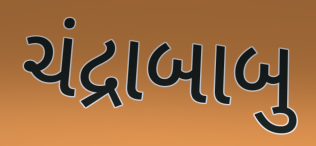
ચંદ્રાબાબુ